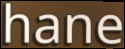
hane